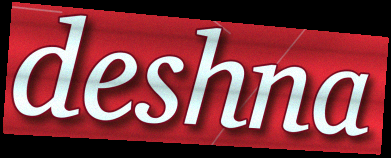
deshna